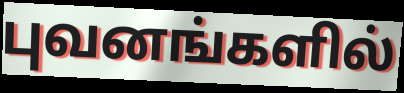
புவனங்களில்